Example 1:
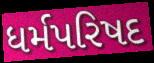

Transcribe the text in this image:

ધર્મપરિષદ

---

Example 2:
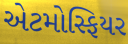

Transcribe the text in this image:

એટમોસ્ફિયર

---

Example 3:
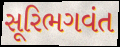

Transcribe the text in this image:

સૂરિભગવંત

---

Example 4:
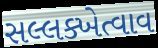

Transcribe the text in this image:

સલ્લક્ખેત્વાવ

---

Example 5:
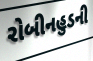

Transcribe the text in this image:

રોબીનહુડની